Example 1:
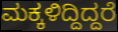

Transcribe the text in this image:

ಮಕ್ಕಳಿದ್ದಿದ್ದರೆ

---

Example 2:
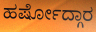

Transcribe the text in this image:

ಹರ್ಷೋದ್ಗಾರ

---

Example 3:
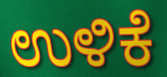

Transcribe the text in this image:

ಉಳಿಕೆ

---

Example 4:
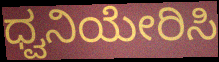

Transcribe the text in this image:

ಧ್ವನಿಯೇರಿಸಿ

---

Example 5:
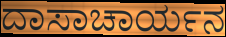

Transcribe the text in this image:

ದಾಸಾಚಾರ್ಯನ